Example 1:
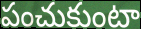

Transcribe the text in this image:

పంచుకుంటా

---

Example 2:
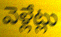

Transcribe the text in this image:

వెళ్లేట్లు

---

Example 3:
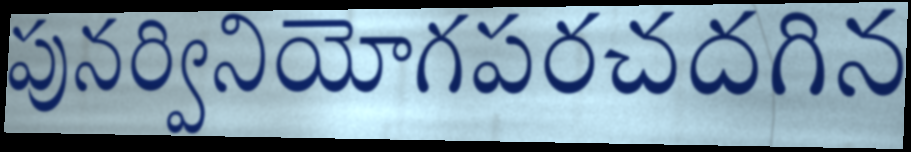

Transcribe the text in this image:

పునర్వినియోగపరచదగిన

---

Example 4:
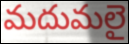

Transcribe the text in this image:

మదుమలై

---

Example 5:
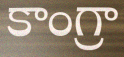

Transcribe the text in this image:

కాంగ్రా